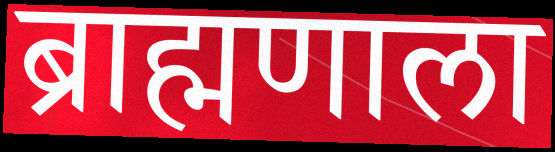
ब्राह्मणाला